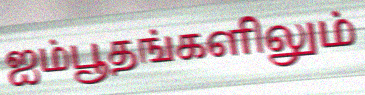
ஐம்பூதங்களிலும்